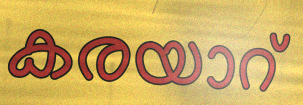
കരയാറ്